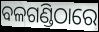
ବଳଗଣ୍ଡିଠାରେ